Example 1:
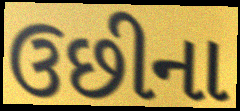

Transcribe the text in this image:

ઉછીના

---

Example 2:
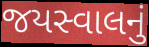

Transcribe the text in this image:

જયસ્વાલનું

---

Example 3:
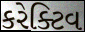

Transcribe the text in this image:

કરેક્ટિવ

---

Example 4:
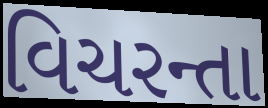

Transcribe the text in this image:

વિચરન્તા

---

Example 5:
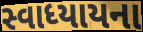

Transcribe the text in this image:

સ્વાધ્યાયના